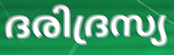
ദരിദ്രസ്യ